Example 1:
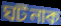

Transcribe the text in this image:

ঘটনাক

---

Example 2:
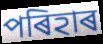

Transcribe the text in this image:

পৰিহাৰ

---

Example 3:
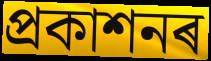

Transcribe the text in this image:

প্ৰকাশনৰ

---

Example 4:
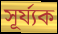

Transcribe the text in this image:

সূৰ্য্যক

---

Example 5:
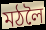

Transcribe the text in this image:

মঠলৈ